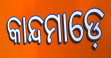
କାନ୍ଦମାଡ଼େ